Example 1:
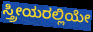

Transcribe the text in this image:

ಸ್ತ್ರೀಯರಲ್ಲಿಯೇ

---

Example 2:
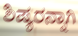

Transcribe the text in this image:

ಶಿಷ್ಯರನ್ನಾಗಿ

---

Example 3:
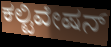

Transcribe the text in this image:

ಕಲ್ಟಿವೇಷನ್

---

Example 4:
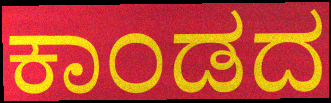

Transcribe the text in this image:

ಕಾಂಡದ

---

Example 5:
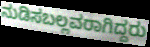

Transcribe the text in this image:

ನುಡಿಸಬಲ್ಲವರಾಗಿದ್ದರು